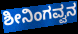
ಶೀನಿಂಗವ್ವನ